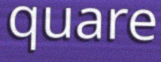
quare